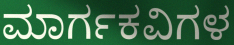
ಮಾರ್ಗಕವಿಗಳ